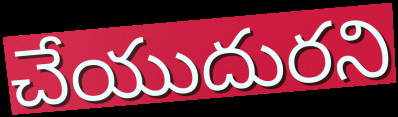
చేయుదురని